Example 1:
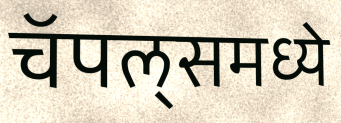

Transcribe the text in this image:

चॅपल्समध्ये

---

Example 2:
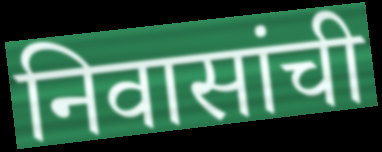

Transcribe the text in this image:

निवासांची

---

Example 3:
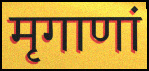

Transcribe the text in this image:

मृगाणां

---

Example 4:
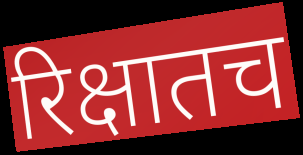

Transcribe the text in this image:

रिक्षातच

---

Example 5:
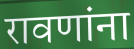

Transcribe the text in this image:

रावणांना